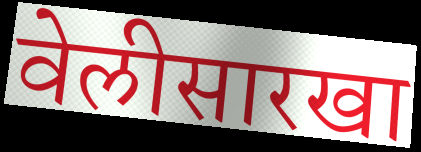
वेलीसारखा